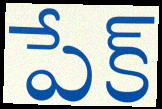
పేక్